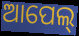
ଆପେଲ୍